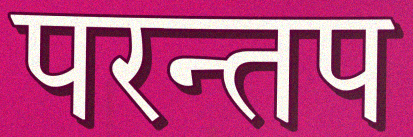
परन्तप